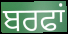
ਬਰਫਾਂ